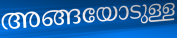
അങ്ങയോടുള്ള